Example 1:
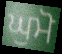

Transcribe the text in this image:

ਘੁਮੋ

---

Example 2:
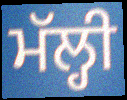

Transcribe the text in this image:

ਮੱਲ੍ਹੀ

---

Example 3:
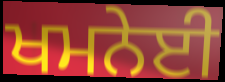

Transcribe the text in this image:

ਖਮਨੇਈ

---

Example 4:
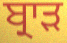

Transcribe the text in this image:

ਬ੍ਰਾੜ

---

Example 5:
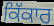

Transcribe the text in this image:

ਕਿੱਕਾਰ